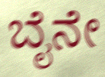
ಬೈನೇ